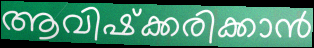
ആവിഷ്‌ക്കരിക്കാൻ